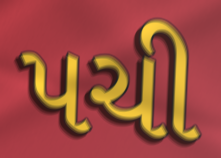
પચી